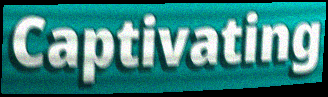
Captivating